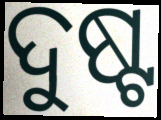
ଦୁଷ୍ଟ